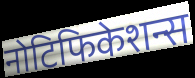
नोटिफिकेशन्स